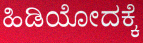
ಹಿಡಿಯೋದಕ್ಕೆ